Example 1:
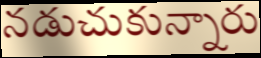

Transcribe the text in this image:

నడుచుకున్నారు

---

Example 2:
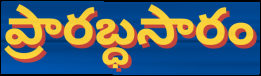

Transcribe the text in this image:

ప్రారబ్ధసారం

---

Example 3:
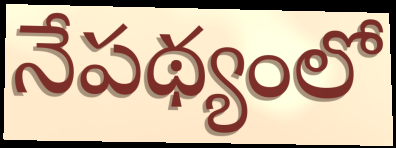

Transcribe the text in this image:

నేపథ్యంలో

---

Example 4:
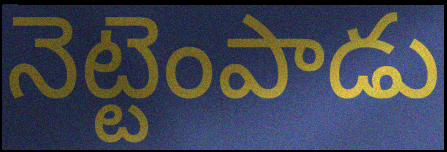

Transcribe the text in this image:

నెట్టెంపాడు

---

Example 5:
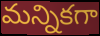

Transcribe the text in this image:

మన్నికగా